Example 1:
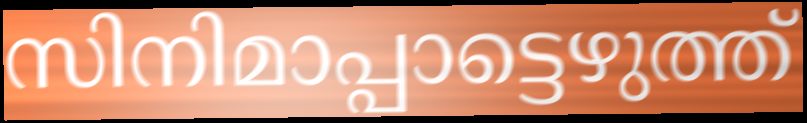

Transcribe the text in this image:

സിനിമാപ്പാട്ടെഴുത്ത്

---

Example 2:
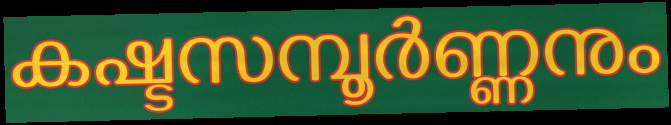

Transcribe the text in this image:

കഷ്ടസമ്പൂർണ്ണനും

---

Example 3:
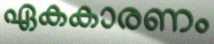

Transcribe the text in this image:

ഏകകാരണം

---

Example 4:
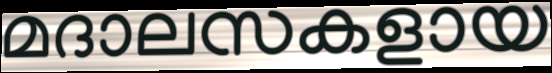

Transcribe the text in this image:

മദാലസകളായ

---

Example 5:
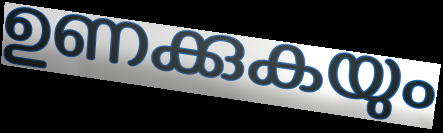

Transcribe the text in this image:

ഉണക്കുകയും